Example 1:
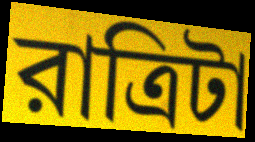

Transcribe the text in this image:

রাত্রিটা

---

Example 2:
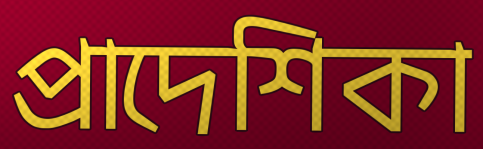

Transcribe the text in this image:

প্রাদেশিকা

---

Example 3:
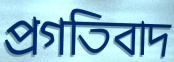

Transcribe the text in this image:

প্রগতিবাদ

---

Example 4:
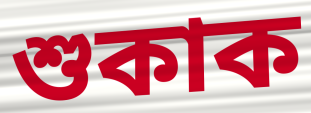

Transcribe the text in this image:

শুকাক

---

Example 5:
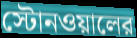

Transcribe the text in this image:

স্টোনওয়ালের